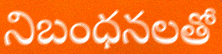
నిబంధనలతో